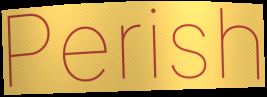
Perish